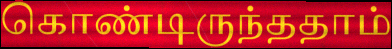
கொண்டிருந்ததாம்